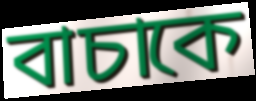
বাচাকে